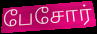
பேசோர்